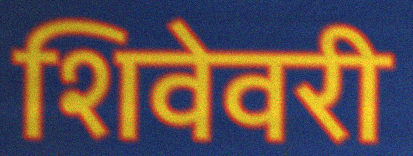
शिवेवरी